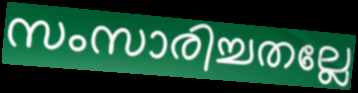
സംസാരിച്ചതല്ലേ